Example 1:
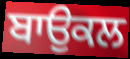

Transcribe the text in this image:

ਬਾਉਕਲ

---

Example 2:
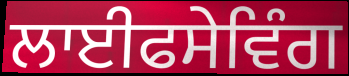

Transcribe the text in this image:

ਲਾਈਫਸੇਵਿੰਗ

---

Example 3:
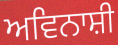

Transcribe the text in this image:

ਅਵਿਨਾਸ਼ੀ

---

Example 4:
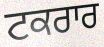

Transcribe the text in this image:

ਟਕਰਾਰ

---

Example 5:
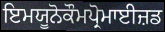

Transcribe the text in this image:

ਇਮਯੂਨੋਕੌਮਪ੍ਰੋਮਾਈਜ਼ਡ